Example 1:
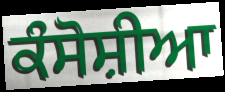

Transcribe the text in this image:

ਕੰਸੋਸ਼ੀਆ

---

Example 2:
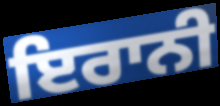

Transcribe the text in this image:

ਇਰਾਨੀ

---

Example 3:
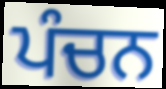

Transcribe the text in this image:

ਪੰਚਨ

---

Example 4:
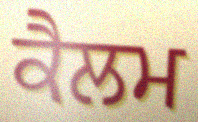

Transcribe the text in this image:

ਕੈਲਮ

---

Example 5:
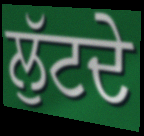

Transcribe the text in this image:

ਲੁੱਟਦੇ